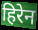
हिरेन